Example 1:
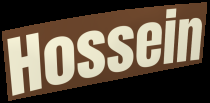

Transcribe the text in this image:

Hossein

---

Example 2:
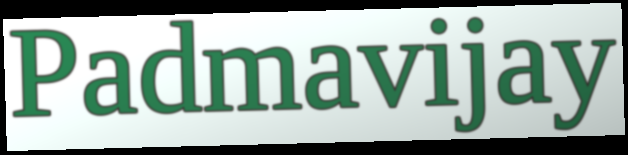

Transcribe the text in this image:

Padmavijay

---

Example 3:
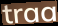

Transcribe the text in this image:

traa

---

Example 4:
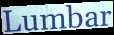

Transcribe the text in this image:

Lumbar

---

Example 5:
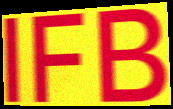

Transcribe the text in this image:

IFB